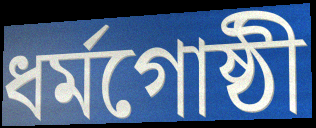
ধৰ্মগোষ্ঠী